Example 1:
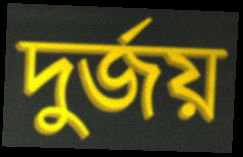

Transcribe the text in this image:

দুৰ্জয়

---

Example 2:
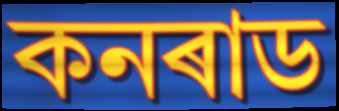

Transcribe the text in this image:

কনৰাড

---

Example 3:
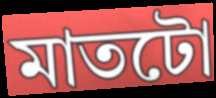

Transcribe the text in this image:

মাতটো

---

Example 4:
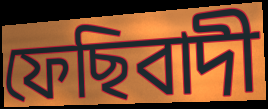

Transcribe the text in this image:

ফেছিবাদী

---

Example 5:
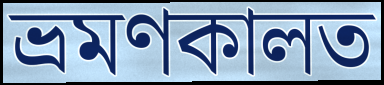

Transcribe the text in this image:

ভ্ৰমণকালত